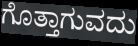
ಗೊತ್ತಾಗುವದು